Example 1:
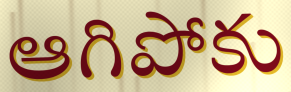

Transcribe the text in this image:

ఆగిపోకు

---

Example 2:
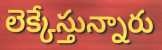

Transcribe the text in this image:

లెక్కేస్తున్నారు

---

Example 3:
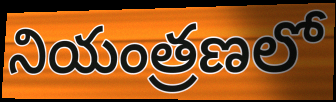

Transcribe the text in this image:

నియంత్రణలో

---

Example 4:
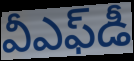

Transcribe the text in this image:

వీఎఫ్‌డీ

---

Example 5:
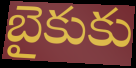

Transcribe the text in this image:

బైకుకు